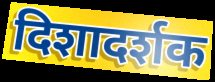
दिशादर्शक